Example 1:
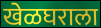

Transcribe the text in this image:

खेळघराला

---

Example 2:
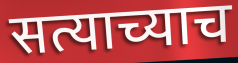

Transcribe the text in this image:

सत्याच्याच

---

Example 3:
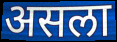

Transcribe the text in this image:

असला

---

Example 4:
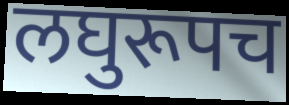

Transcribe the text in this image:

लघुरूपच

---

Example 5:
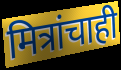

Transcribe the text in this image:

मित्रांचाही